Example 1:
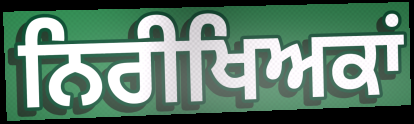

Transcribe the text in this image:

ਨਿਰੀਖਿਅਕਾਂ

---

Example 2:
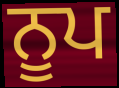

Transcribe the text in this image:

ਨੂਪ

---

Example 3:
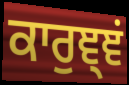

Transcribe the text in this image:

ਕਾਰੁਞ੍ਞਂ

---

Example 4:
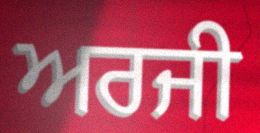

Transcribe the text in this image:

ਅਰਜੀ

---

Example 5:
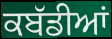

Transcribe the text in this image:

ਕਬੱਡੀਆਂ